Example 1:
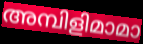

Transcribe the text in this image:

അമ്പിളിമാമാ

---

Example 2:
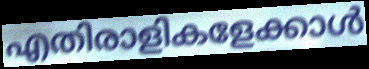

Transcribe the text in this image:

എതിരാളികളേക്കാൾ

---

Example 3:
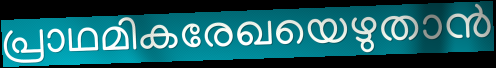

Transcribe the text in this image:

പ്രാഥമികരേഖയെഴുതാൻ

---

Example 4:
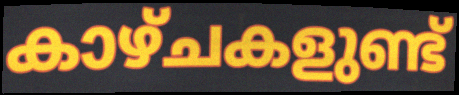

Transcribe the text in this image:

കാഴ്ചകളുണ്ട്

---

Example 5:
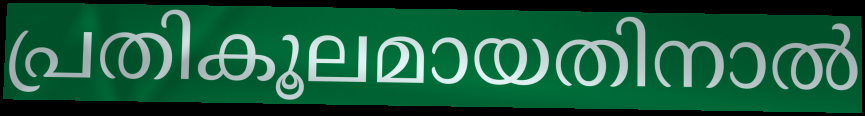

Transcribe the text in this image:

പ്രതികൂലമായതിനാൽ